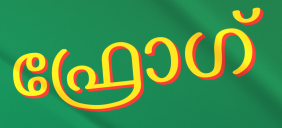
ഫ്രോഗ്